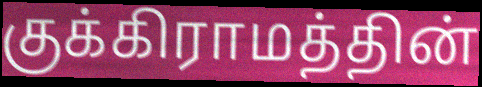
குக்கிராமத்தின்